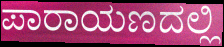
ಪಾರಾಯಣದಲ್ಲಿ